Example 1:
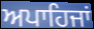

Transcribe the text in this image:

ਅਪਾਹਿਜਾਂ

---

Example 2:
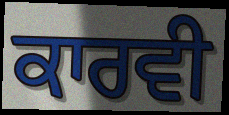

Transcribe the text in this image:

ਕਾਰਵੀ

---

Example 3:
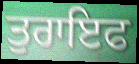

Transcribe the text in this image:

ਤੁਰਾਇਫ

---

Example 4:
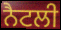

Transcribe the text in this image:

ਨੈਟਲੀ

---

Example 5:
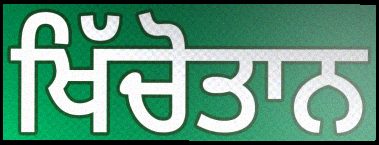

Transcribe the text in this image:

ਖਿੱਚੋਤਾਨ